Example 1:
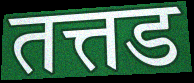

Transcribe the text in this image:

तत्तड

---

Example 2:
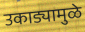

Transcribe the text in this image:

उकाड्यामुळे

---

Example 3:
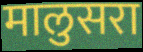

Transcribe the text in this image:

मालुसरा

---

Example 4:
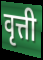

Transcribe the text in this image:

वृत्ती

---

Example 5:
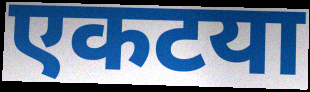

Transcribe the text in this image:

एकटया